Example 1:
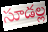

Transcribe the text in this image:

సూడల్ల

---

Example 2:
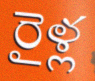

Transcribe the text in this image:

రైళ్ల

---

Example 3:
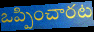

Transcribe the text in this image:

ఒప్పించారట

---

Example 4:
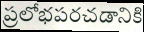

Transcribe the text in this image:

ప్రలోభపరచడానికి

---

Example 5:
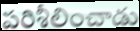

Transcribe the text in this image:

పరిశీలించాడు